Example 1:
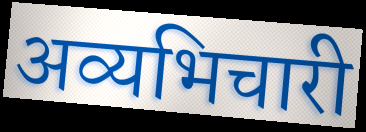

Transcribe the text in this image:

अव्यभिचारी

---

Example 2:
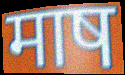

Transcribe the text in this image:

माष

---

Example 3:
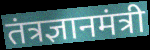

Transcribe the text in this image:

तंत्रज्ञानमंत्री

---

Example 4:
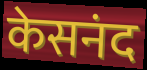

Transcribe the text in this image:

केसनंद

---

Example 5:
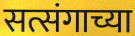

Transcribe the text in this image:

सत्संगाच्या